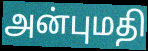
அன்புமதி